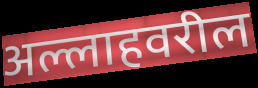
अल्लाहवरील